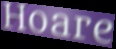
Hoare